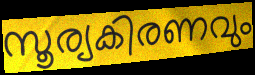
സൂര്യകിരണവും